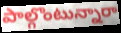
పాల్గొంటున్నారా